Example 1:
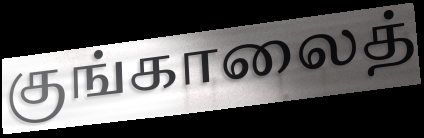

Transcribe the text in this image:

குங்காலைத்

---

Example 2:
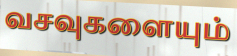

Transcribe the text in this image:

வசவுகளையும்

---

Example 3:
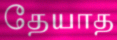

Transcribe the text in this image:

தேயாத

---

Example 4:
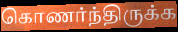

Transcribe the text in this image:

கொணர்ந்திருக்க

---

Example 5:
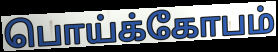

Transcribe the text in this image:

பொய்க்கோபம்